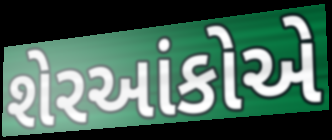
શેરઆંકોએ